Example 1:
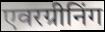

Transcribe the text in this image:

एवरग्रीनिंग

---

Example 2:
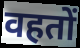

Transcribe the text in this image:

वहतों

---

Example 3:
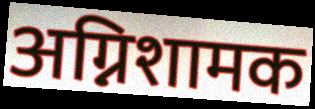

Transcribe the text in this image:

अग्निशामक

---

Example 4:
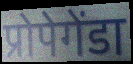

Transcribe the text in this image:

प्रोपेगेंडा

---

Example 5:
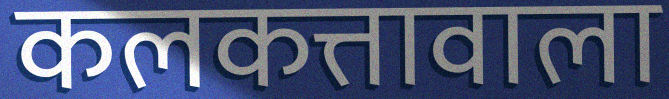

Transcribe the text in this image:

कलकत्तावाला